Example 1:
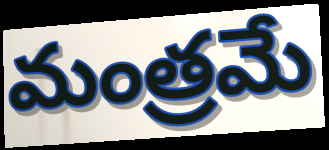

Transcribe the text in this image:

మంత్రమే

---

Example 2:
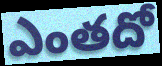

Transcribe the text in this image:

ఎంతదో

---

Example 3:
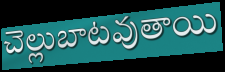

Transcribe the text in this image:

చెల్లుబాటవుతాయి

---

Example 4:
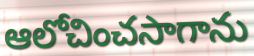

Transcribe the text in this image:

ఆలోచించసాగాను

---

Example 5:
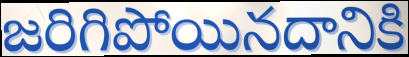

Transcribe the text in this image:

జరిగిపోయినదానికి